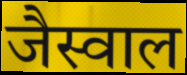
जैस्वाल